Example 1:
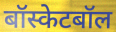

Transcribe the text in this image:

बॉस्केटबॉल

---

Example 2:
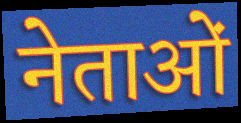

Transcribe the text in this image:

नेताओं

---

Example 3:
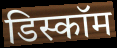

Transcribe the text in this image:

डिस्कॉम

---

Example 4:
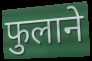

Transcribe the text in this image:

फुलाने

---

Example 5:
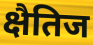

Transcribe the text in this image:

क्षैतिज